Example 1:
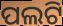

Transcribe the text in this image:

ପଲଟି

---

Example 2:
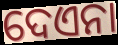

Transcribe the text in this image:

ଦେଏନା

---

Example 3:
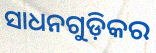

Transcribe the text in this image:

ସାଧନଗୁଡ଼ିକର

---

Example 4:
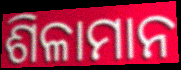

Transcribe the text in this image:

ଶିଳାମାନ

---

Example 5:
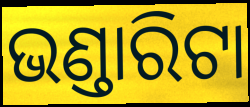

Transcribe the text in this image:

ଭଣ୍ଡାରିଟା